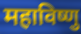
महाविष्णु